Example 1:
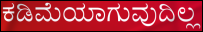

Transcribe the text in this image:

ಕಡಿಮೆಯಾಗುವುದಿಲ್ಲ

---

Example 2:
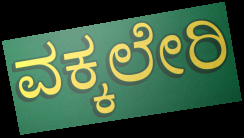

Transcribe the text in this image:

ವಕ್ಕಲೇರಿ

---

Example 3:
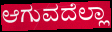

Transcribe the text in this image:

ಆಗುವದೆಲ್ಲಾ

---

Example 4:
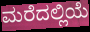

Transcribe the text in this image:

ಮರೆದಲ್ಲಿಯೆ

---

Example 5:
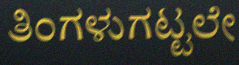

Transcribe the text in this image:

ತಿಂಗಳುಗಟ್ಟಲೇ